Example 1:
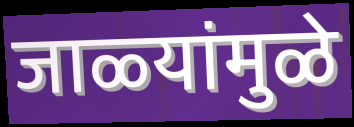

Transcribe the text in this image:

जाळ्यांमुळे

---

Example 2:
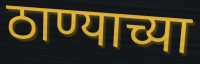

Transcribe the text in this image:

ठाण्याच्या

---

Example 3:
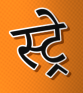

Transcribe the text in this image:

स्ट्रे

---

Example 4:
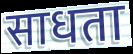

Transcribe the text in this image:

साधता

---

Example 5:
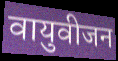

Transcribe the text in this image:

वायुवीजन